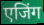
एजिंग